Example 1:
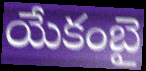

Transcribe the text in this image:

యేకంబై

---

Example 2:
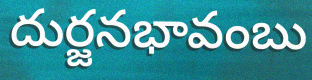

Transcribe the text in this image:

దుర్జనభావంబు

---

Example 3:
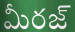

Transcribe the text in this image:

మీరజ్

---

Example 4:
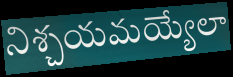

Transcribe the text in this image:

నిశ్చయమయ్యేలా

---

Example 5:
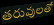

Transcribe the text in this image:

తరువులతో